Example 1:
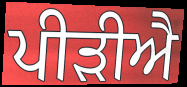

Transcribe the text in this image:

ਪੀੜੀਐ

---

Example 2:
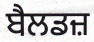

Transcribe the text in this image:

ਬੈਲਡਜ਼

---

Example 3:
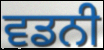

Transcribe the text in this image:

ਵਡਨੀ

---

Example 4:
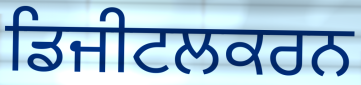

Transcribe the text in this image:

ਡਿਜੀਟਲਕਰਨ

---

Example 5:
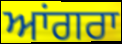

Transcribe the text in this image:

ਆਂਗਰਾ